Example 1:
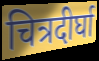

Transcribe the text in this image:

चित्रदीर्घा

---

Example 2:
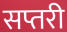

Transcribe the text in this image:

सप्तरी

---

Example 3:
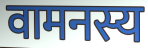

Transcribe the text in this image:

वामनस्य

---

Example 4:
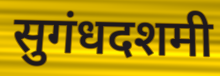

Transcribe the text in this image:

सुगंधदशमी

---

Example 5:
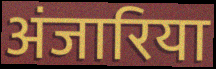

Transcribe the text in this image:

अंजारिया